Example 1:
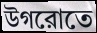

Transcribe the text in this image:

উগরোতে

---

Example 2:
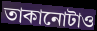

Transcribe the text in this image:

তাকানোটাও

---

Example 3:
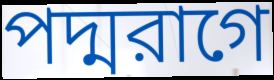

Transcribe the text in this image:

পদ্মরাগে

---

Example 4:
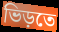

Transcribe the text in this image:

ভিড়তে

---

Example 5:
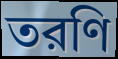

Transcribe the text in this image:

তরণি